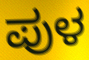
ಪುಳ